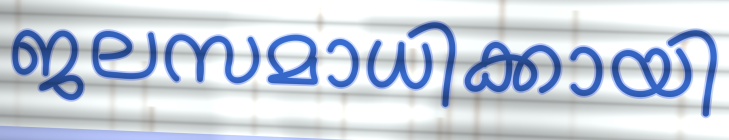
ജലസമാധിക്കായി